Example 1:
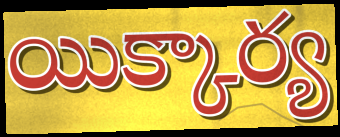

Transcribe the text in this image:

యిక్కార్య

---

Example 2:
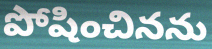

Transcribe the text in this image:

పోషించినను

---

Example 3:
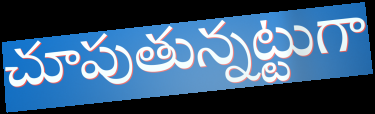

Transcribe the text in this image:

చూపుతున్నట్టుగా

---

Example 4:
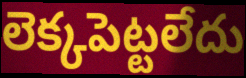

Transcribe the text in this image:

లెక్కపెట్టలేదు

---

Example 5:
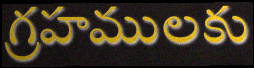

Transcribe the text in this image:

గ్రహములకు